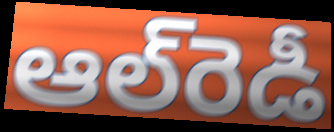
ఆల్‌రెడీ